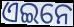
ଏଇନେ